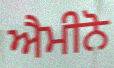
ਐਮੀਨੋ